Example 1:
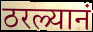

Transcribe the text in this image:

ठरल्यानं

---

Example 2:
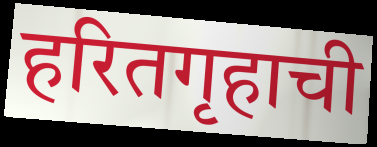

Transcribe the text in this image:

हरितगृहाची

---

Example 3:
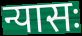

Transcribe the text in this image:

न्यासः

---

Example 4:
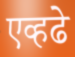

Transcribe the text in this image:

एव्हढे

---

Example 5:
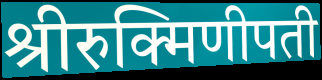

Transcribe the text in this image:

श्रीरुक्मिणीपती